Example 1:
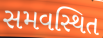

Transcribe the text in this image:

સમવસ્થિત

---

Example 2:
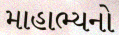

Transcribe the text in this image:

માહાભ્યનો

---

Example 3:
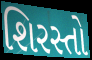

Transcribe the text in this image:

શિરસ્તો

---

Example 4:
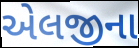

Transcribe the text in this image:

એલજીના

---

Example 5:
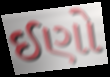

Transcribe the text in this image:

ઈણો